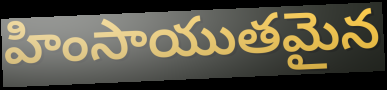
హింసాయుతమైన